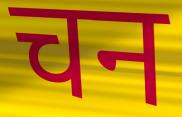
चन